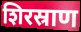
शिरस्राण